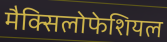
मैक्सिलोफेशियल